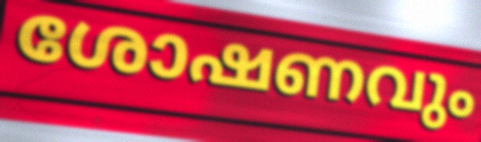
ശോഷണവും